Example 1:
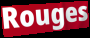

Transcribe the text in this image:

Rouges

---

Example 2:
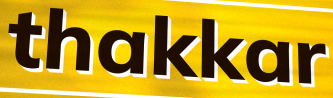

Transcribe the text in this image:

thakkar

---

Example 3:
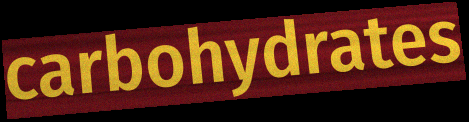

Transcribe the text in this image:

carbohydrates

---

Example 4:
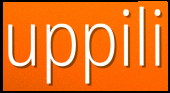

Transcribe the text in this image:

uppili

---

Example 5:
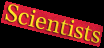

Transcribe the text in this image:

Scientists